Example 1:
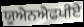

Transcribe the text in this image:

ਯੂਐਨਐਫਪੀਏ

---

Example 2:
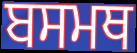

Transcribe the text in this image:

ਬਸਮਥ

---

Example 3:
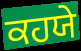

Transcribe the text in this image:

ਕਹਯੇ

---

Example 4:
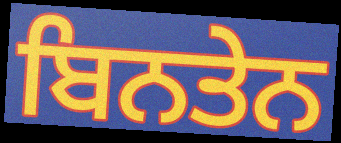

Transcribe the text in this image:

ਬਿਨਤੇਨ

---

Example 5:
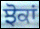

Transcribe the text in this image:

ਝੋਕਾਂ